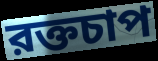
রক্তচাপ